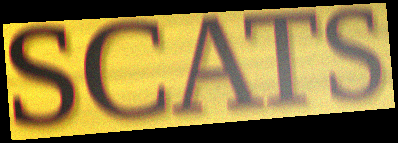
SCATS